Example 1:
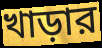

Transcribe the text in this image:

খাড়ার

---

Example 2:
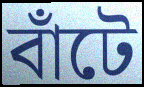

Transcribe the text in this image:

বাঁটে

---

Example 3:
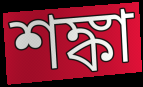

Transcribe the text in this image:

শঙ্কা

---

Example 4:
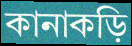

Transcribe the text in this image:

কানাকড়ি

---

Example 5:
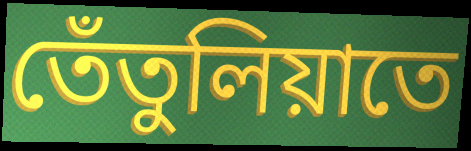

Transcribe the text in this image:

তেঁতুলিয়াতে